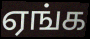
ஏங்க